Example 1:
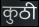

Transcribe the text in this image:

कुठी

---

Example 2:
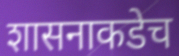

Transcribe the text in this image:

शासनाकडेच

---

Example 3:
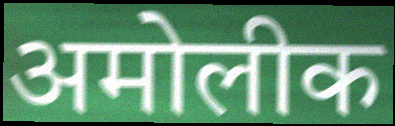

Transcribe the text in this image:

अमोलीक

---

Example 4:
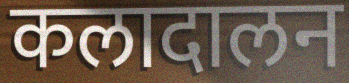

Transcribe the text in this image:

कलादालन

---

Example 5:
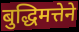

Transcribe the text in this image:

बुद्धिमत्तेने